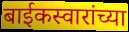
बाईकस्वारांच्या